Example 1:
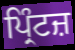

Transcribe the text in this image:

ਪ੍ਰਿੰਟਜ਼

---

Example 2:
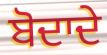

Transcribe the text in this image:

ਬੋਦਾਦੇ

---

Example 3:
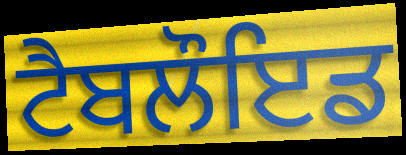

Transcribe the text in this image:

ਟੈਬਲੌਇਡ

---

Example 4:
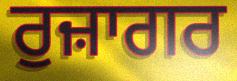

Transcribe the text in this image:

ਰੁਜ਼ਾਗਰ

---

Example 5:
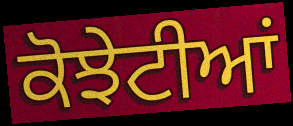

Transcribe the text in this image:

ਕੋਝੇਟੀਆਂ